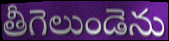
తీగెలుండెను